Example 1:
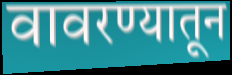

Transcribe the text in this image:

वावरण्यातून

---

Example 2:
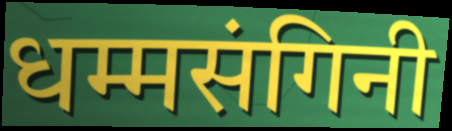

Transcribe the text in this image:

धम्मसंगिनी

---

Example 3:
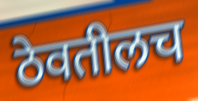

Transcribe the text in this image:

ठेवतीलच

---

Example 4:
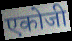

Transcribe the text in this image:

एकोजी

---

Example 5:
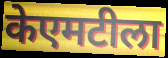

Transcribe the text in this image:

केएमटीला